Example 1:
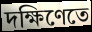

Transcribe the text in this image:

দক্ষিণেতে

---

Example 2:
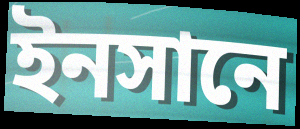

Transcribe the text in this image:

ইনসানে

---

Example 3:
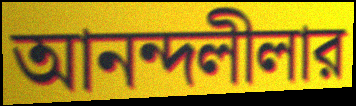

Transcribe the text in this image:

আনন্দলীলার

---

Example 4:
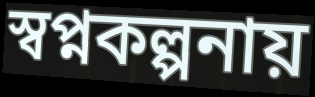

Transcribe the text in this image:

স্বপ্নকল্পনায়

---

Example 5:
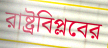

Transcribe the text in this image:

রাষ্ট্রবিপ্লবের